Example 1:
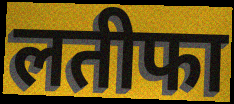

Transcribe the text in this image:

लतीफा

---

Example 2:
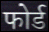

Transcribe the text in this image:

फोर्ड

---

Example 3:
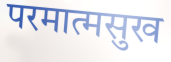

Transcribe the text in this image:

परमात्मसुख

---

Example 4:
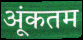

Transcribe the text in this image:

अूंकतम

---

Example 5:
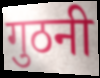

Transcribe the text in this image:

गुठनी